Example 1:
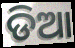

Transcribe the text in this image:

ଡିଆ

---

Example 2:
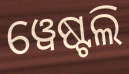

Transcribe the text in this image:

ୱେଷ୍ଟଲି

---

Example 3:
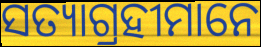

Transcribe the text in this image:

ସତ୍ୟାଗ୍ରହୀମାନେ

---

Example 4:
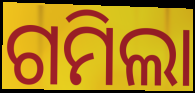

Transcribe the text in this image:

ଗମିଲା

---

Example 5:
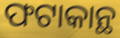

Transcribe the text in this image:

ଫଟାକାନ୍ଥ